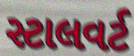
સ્ટાલવર્ટ